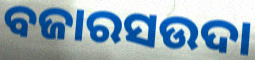
ବଜାରସଉଦା